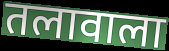
तलावाला